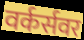
वर्कर्सवर